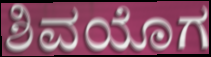
ಶಿವಯೊಗ